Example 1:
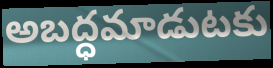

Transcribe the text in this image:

అబద్ధమాడుటకు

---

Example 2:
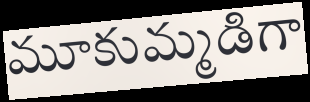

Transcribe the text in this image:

మూకుమ్మడిగా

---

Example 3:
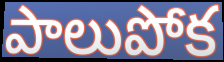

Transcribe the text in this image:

పాలుపోక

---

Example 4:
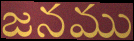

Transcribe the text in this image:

జనము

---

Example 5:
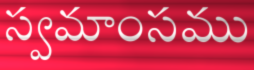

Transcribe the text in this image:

స్వమాంసము